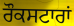
ਰੌਕਸਟਾਰਾਂ